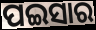
ପଇସାର